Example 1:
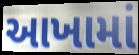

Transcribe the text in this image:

આખામાં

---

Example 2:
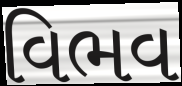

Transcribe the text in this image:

વિભવ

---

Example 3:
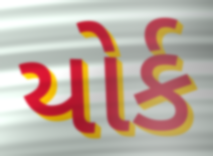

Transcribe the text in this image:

યોર્ક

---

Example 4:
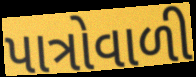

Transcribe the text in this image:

પાત્રોવાળી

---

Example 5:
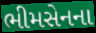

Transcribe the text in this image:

ભીમસેનના